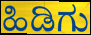
ಹಿಡಿಗು